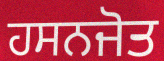
ਹਸਨਜੋਤ